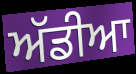
ਅੱਡੀਆ